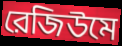
রেজিউমে